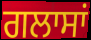
ਗਲਾਸਾਂ